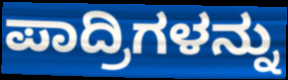
ಪಾದ್ರಿಗಳನ್ನು